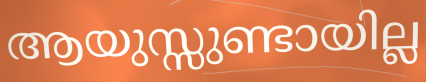
ആയുസ്സുണ്ടായില്ല